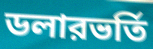
ডলারভর্তি